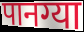
पानग्या